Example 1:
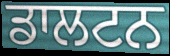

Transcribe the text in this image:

ਡਾਲਟਨ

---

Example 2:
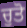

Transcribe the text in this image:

ਚੁਤੋ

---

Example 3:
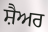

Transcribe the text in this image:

ਸ਼ੈਅਰ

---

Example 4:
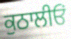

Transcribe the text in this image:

ਕੁਠਾਲੀਓਂ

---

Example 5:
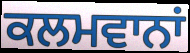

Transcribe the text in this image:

ਕਲਮਵਾਨਾਂ